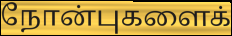
நோன்புகளைக்